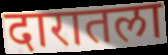
दारातला